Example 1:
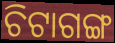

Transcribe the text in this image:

ଚିଟାଗଙ୍ଗ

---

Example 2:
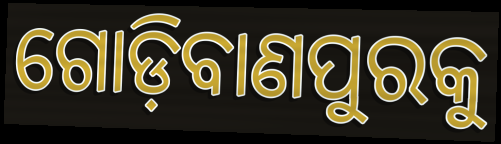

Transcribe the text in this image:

ଗୋଡ଼ିବାଣପୁରକୁ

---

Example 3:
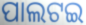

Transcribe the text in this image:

ପାଲଟଇ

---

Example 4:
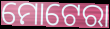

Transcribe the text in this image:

ମୋଟେରା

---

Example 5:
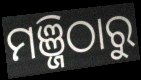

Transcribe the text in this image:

ମଞ୍ଜିଠାରୁ